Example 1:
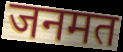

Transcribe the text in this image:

जनमत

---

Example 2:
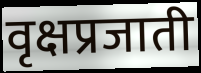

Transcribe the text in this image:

वृक्षप्रजाती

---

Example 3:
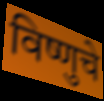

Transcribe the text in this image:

विष्णुचे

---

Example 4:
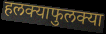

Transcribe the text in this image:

हलक्याफुलक्या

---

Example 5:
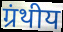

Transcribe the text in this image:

ग्रंथीय